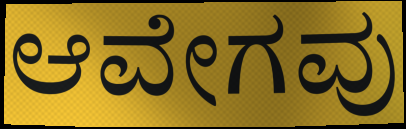
ಆವೇಗವು